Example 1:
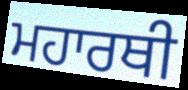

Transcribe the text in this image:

ਮਹਾਰਥੀ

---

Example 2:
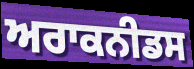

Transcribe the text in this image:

ਅਰਾਕਨੀਡਸ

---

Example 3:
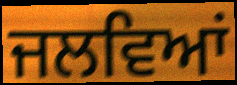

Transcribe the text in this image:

ਜਲਵਿਆਂ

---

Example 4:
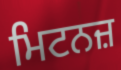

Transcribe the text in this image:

ਮਿਟਨਜ਼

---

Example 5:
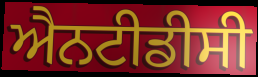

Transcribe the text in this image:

ਐਨਟੀਡੀਸੀ